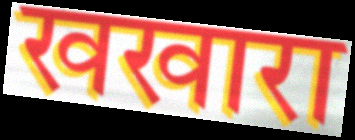
खखारा